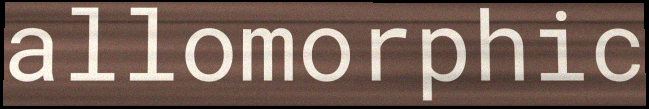
allomorphic